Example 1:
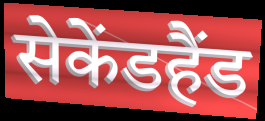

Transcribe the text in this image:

सेकेंडहैंड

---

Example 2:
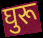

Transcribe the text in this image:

घुरू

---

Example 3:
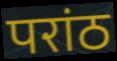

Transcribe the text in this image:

परांठ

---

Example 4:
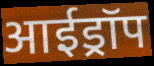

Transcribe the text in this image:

आईड्रॉप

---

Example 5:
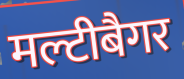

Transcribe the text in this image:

मल्‍टीबैगर